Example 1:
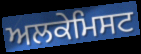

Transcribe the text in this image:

ਅਲਕੇਮਿਸਟ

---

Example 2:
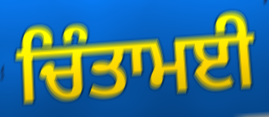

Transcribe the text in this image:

ਚਿੰਤਾਮਈ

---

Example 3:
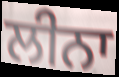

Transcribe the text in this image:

ਲੀਨਾ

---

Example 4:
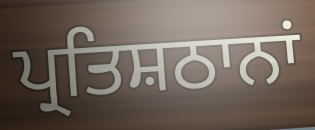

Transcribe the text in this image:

ਪ੍ਰਤਿਸ਼ਠਾਨਾਂ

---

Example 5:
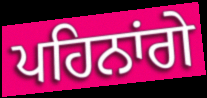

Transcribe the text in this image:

ਪਹਿਨਾਂਗੇ